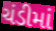
ચંડીમાં